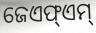
ଜେଏଫ୍ଏମ୍